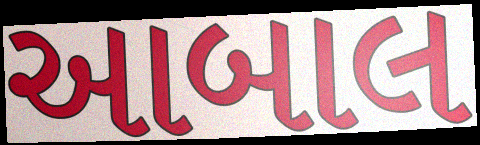
આબાલ